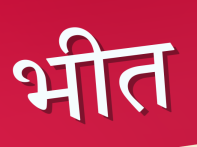
भीत